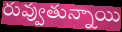
రువ్వుతున్నాయి